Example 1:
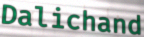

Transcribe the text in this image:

Dalichand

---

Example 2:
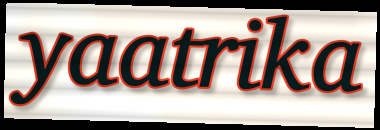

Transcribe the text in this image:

yaatrika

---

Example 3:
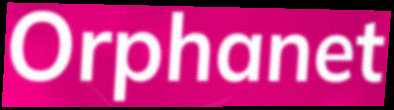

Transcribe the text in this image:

Orphanet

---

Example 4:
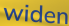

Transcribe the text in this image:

widen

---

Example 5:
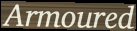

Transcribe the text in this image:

Armoured